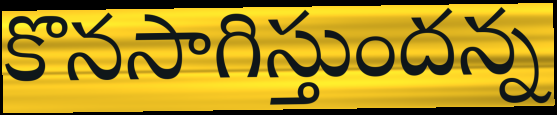
కొనసాగిస్తుందన్న